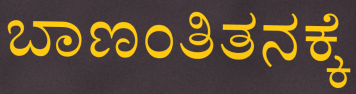
ಬಾಣಂತಿತನಕ್ಕೆ